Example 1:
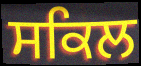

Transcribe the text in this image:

ਸਕਿਲ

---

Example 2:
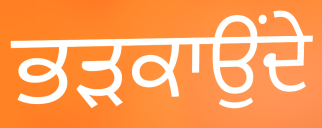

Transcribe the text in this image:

ਭੜਕਾਉਂਦੇ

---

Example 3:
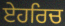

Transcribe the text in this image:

ਏਹਰਿਚ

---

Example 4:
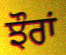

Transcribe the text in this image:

ਝੌਰਾਂ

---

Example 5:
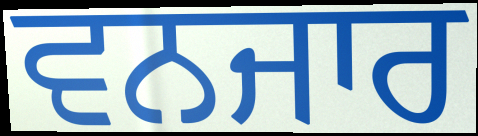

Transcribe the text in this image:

ਵਨਜਾਰ